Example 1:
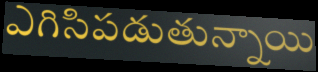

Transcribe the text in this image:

ఎగిసిపడుతున్నాయి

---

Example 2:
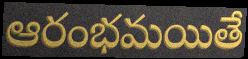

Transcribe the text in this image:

ఆరంభమయితే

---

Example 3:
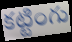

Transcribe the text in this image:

కట్టింగు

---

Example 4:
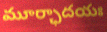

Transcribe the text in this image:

మూర్ఛాదయః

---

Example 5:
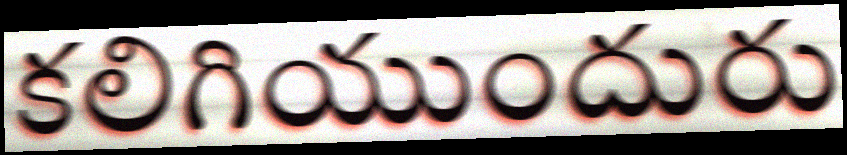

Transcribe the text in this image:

కలిగియుందురు